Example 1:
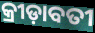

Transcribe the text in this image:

କ୍ରୀଡ଼ାବତୀ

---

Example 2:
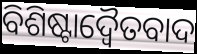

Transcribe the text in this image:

ବିଶିଷ୍ଟାଦ୍ୱୈତବାଦ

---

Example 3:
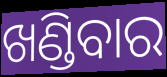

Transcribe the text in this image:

ଖଣ୍ଡିବାର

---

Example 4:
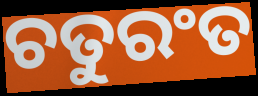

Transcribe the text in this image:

ଚତୁରଂତ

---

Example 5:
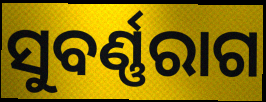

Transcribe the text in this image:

ସୁବର୍ଣ୍ଣରାଗ